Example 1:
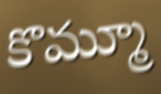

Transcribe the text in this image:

కొమ్మూ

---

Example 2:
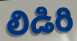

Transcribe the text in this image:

లిడిరి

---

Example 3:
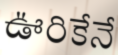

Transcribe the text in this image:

ఊరికేనే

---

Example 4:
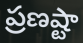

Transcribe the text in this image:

ప్రణష్టా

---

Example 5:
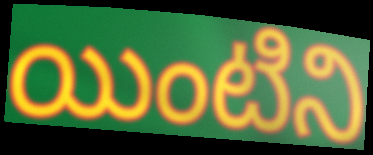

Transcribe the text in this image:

యింటిని